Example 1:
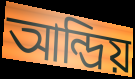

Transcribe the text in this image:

আন্দ্রিয়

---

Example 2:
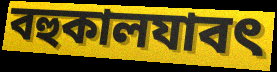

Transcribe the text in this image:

বহুকালযাবৎ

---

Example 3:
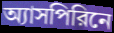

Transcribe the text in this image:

অ্যাসপিরিনে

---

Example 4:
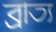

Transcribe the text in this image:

ব্রাত্য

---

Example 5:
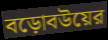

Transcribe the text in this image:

বড়োবউয়ের